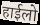
हाईलो